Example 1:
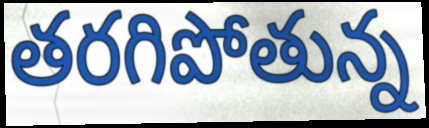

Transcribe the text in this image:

తరగిపోతున్న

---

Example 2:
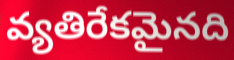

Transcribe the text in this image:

వ్యతిరేకమైనది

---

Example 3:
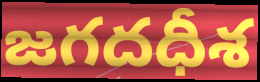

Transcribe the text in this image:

జగదధీశ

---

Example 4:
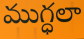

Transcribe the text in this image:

ముగ్ధలా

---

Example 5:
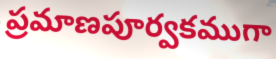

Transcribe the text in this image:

ప్రమాణపూర్వకముగా